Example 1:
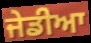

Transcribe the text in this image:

ਜੇਡੀਆ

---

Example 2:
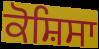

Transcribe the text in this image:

ਕੋਸ਼ਿਸਾ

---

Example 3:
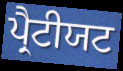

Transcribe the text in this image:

ਪ੍ਰੈਟੀਯਟ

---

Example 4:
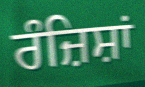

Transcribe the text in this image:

ਰੰਜ਼ਿਸ਼ਾਂ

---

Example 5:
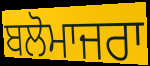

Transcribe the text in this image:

ਬਲੋਮਾਜਰਾ